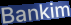
Bankim